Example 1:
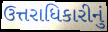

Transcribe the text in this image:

ઉત્તરાધિકારીનું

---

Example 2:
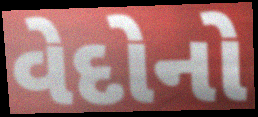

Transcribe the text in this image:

વેદોનો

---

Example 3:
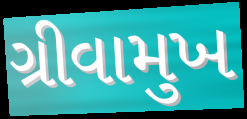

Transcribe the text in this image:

ગ્રીવામુખ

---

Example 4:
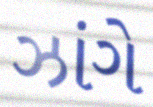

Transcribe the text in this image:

ઝાંગે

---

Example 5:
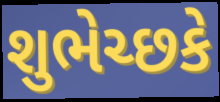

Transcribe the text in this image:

શુભેચ્છકે